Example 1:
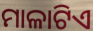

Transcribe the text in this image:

ମାଳାଟିଏ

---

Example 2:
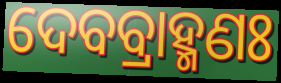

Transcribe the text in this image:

ଦେବବ୍ରାହ୍ମଣଃ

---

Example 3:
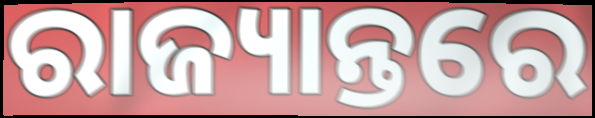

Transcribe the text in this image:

ରାଜ୍ୟାନ୍ତରେ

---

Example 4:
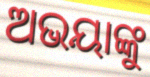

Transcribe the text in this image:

ଅଭୟାଙ୍କୁ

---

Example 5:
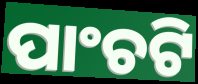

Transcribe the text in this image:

ପାଂଚଟି